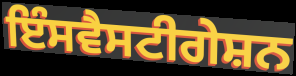
ਇੰਸਵੈਸਟੀਗੇਸ਼ਨ